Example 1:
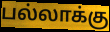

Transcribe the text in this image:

பல்லாக்கு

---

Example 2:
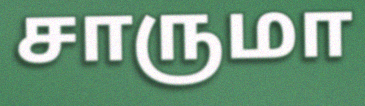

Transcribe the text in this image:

சாருமா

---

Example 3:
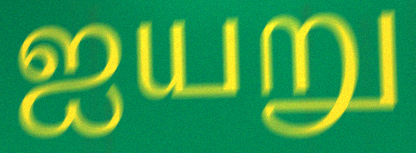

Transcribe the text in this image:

ஐயறு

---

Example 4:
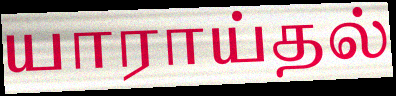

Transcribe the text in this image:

யாராய்தல்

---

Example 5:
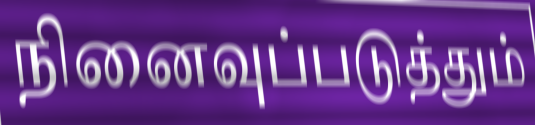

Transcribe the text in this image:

நினைவுப்படுத்தும்